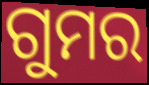
ଗୁମର